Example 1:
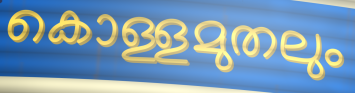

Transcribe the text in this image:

കൊള്ളമുതലും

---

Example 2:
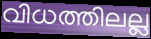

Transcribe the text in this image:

വിധത്തിലല്ല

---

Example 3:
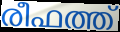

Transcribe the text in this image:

രീഫത്ത്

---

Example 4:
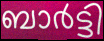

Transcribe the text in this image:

ബാർട്ടി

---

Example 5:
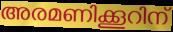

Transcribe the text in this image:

അരമണിക്കൂറിന്